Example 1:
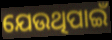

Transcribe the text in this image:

ଯେଉଥିପାଇଁ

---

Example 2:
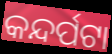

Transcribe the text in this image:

କନ୍ଦର୍ପଟା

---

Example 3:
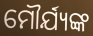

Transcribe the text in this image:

ମୌର୍ଯ୍ୟଙ୍କ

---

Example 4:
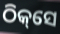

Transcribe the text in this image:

ଠିକ୍‌ସେ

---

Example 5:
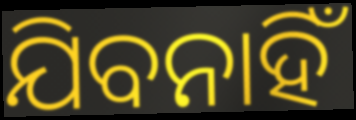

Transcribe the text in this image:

ଯିବନାହିଁ